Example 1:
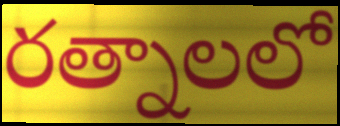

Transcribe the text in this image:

రత్నాలలో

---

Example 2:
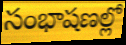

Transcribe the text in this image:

సంభాషణల్లో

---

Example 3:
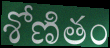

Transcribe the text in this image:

శోణితం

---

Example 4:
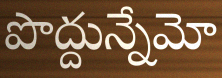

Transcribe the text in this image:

పొద్దున్నేమో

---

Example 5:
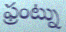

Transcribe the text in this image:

ఫ్రంట్ను